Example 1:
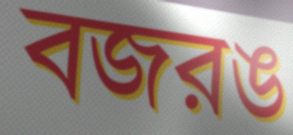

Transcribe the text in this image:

বজরঙ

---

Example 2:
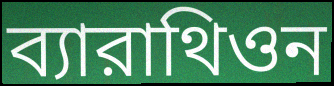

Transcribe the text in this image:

ব্যারাথিওন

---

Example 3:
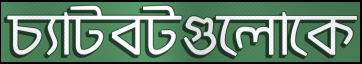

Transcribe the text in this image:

চ্যাটবটগুলোকে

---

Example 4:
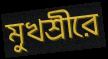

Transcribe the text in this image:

মুখশ্রীরে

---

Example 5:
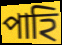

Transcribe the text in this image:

পাহি